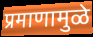
प्रमाणामुळे